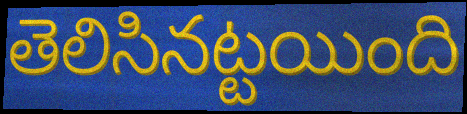
తెలిసినట్టయింది